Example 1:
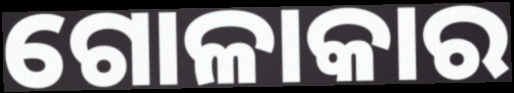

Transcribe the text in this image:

ଗୋଳାକାର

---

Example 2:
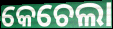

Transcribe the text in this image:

କେଚେଲା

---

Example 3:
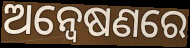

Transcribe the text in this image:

ଅନ୍ବେଷଣରେ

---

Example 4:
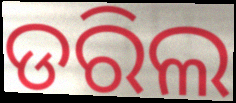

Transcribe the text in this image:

ଡରିଲ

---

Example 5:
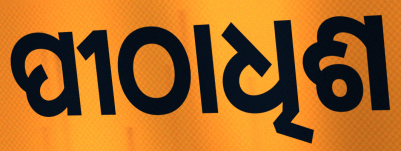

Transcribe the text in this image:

ପୀଠାଧିଶ